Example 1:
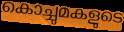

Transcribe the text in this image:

കൊച്ചുമകളുടെ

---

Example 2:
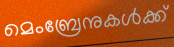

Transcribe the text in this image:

മെംബ്രേനുകൾക്ക്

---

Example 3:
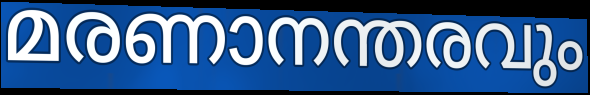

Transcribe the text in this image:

മരണാനന്തരവും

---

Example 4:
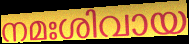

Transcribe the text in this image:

നമഃശിവായ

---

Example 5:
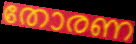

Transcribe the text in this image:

തോരണ